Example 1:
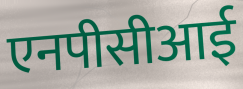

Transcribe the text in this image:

एनपीसीआई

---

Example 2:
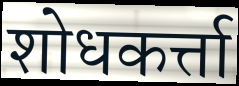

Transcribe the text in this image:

शोधकर्त्ता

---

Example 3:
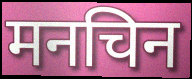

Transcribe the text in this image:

मनचिन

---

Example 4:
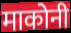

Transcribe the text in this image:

माकोनी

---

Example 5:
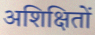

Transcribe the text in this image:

अशिक्षितों